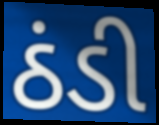
ઠંડી